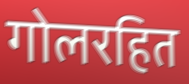
गोलरहित